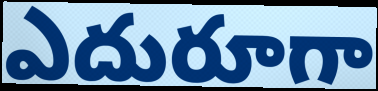
ఎదురూగా